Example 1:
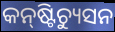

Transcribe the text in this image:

କନ୍‍ଷ୍ଟିଚ୍ୟୁସନ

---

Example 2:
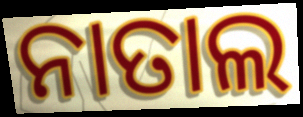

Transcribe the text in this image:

ନାତାଲ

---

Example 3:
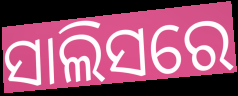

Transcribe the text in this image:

ସାଲିସରେ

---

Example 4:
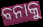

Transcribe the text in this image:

ବନାକୁ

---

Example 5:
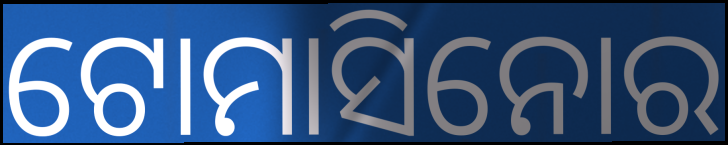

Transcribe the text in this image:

ଟୋମାସିନୋର